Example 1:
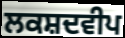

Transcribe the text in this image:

ਲਕਸ਼ਦਵੀਪ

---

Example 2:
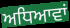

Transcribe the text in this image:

ਅਧਿਆਵਾਂ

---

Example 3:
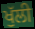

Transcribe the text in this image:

ਖੁੱਲੀ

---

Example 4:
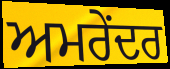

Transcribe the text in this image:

ਅਮਰੇਂਦਰ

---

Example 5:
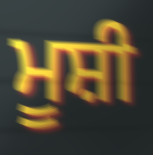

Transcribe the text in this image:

ਮੂਸ਼ੀ